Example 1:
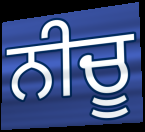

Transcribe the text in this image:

ਨੀਚੂ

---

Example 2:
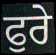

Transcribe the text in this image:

ਫੁਰੇ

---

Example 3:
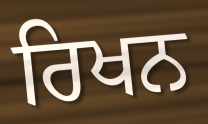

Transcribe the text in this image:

ਰਿਖਨ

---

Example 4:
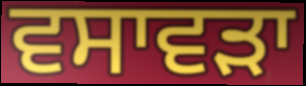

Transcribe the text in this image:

ਵਸਾਵੜਾ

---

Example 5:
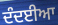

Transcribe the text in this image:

ਦੰਦਈਆ